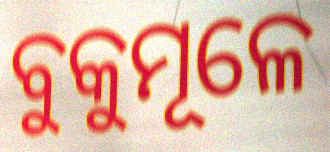
ବୁକୁମୂଳେ